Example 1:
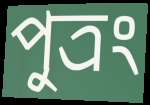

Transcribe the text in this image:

পুত্রং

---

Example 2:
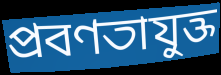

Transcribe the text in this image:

প্রবণতাযুক্ত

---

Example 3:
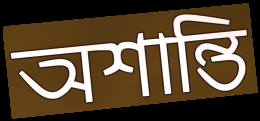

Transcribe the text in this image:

অশান্তি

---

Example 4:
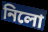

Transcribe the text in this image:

নিলো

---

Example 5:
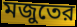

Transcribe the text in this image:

মজুতের